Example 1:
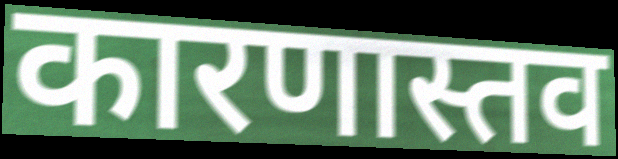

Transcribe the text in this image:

कारणास्तव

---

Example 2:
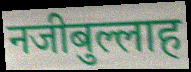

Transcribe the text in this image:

नजीबुल्लाह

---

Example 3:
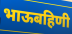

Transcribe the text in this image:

भाऊबहिणी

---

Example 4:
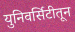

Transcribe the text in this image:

युनिवर्सिटीतून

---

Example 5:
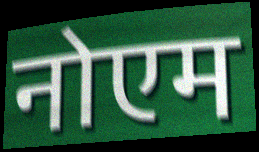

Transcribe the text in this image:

नोएम